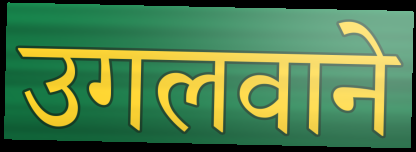
उगलवाने